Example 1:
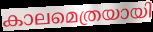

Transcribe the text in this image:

കാലമെത്രയായി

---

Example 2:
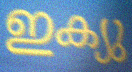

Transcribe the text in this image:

ഇക്യു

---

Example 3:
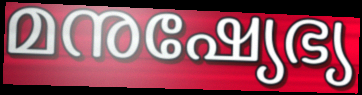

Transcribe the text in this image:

മനുഷ്യേഭ്യ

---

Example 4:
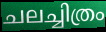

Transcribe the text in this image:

ചലച്ചിത്രം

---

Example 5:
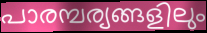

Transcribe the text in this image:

പാരമ്പര്യങ്ങളിലും